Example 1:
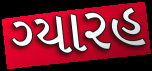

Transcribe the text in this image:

ગ્યારહ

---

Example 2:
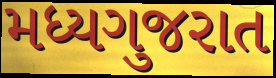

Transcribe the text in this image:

મધ્યગુજરાત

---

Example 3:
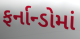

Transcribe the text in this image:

ફર્નાન્ડોમાં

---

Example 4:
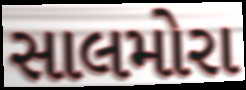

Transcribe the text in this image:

સાલમોરા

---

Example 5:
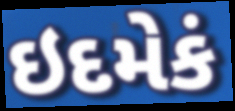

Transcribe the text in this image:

ઇદમેકં